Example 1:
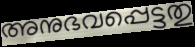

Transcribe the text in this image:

അനുഭവപ്പെട്ടതു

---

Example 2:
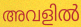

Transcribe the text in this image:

അവളിൽ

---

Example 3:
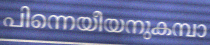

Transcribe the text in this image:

പിന്നെയീയനുകമ്പാ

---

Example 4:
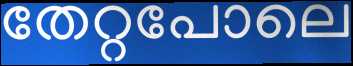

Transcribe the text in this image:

തേറ്റപോലെ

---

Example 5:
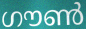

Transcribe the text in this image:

ഗൗൺ